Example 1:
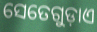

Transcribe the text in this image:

ସେତେଗୁଡ଼ାଏ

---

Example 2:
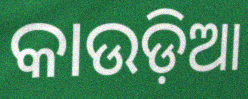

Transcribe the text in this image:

କାଉଡ଼ିଆ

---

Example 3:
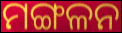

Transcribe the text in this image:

ମଙ୍ଗଳନ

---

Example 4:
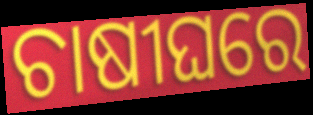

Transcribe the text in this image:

ଚାଷୀଘରେ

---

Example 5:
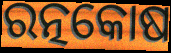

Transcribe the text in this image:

ରତ୍ନକୋଷ